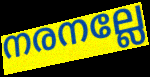
നരനല്ലേ